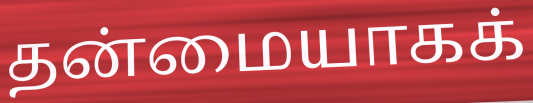
தன்மையாகக்